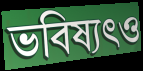
ভবিষ্যৎও